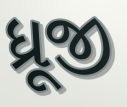
ધ્રૂજી